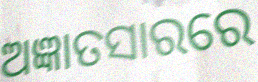
ଅଜ୍ଞାତସାରରେ